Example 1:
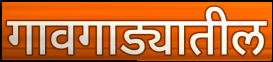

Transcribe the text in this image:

गावगाड्यातील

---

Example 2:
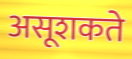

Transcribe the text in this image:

असूशकते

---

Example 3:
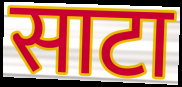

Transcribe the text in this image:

साटा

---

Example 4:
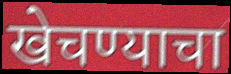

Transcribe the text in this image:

खेचण्याचा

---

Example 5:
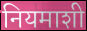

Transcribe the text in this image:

नियमाशी